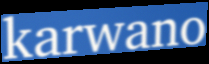
karwano